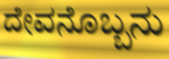
ದೇವನೊಬ್ಬನು